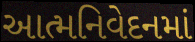
આત્મનિવેદનમાં